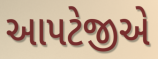
આપટેજીએ